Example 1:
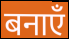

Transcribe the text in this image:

बनाएँ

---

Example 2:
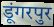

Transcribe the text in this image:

डूंगरपुर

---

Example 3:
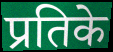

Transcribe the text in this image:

प्रतिके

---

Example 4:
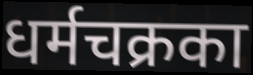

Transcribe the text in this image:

धर्मचक्रका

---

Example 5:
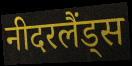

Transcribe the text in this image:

नीदरलैंड्स